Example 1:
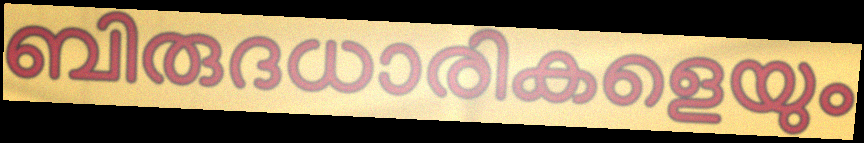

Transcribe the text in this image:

ബിരുദധാരികളെയും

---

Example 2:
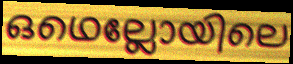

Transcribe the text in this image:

ഒഥെല്ലോയിലെ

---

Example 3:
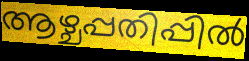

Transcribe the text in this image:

ആഴ്ചപ്പതിപ്പിൽ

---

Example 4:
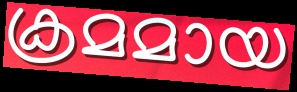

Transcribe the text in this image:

ക്രമമായ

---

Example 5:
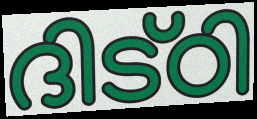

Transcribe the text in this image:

ദിട്ഠി